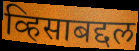
व्हिसाबद्दल